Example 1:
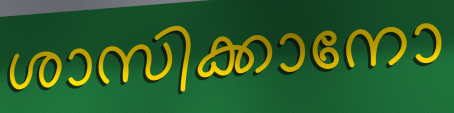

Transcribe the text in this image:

ശാസിക്കാനോ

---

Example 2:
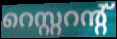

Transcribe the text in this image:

റെസ്റ്ററന്റ്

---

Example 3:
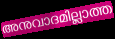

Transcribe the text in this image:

അനുവാദമില്ലാത്ത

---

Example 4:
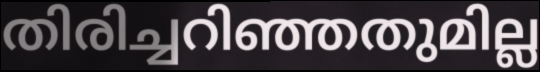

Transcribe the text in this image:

തിരിച്ചറിഞ്ഞതുമില്ല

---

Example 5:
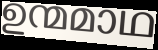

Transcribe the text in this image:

ഉന്മമാഥ